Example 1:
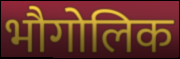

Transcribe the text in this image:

भौगोलिक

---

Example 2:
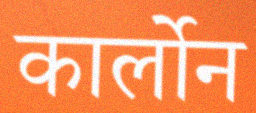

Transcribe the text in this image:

कार्लोन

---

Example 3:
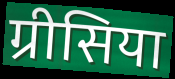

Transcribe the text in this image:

ग्रीसिया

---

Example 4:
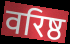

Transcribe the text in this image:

वरिष्ठ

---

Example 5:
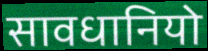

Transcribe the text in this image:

सावधानियो